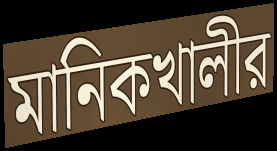
মানিকখালীর